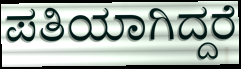
ಪತಿಯಾಗಿದ್ದರೆ